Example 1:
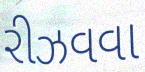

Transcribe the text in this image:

રીઝવવા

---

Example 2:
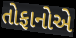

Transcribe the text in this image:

તોફાનોએ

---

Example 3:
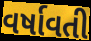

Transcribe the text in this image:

વર્ષાવતી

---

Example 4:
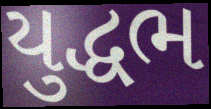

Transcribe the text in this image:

યુદ્ધભ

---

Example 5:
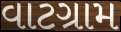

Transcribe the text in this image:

વાટગ્રામ